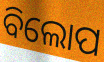
ବିଲୋପ